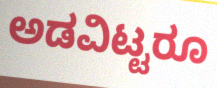
ಅಡವಿಟ್ಟರೂ